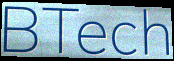
BTech